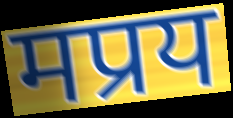
मप्रय